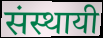
संस्थायी